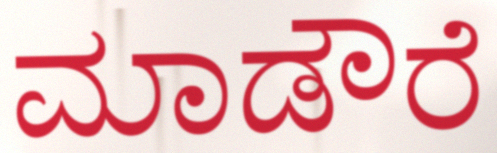
ಮಾಡೌರೆ